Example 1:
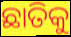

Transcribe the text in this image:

ଛାତିକୁ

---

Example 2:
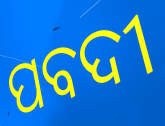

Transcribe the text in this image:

ପବଦୀ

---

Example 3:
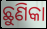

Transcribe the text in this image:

ଛୁଣିକା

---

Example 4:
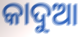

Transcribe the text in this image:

କାଦୁଆ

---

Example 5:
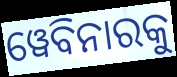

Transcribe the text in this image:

ୱେବିନାରକୁ